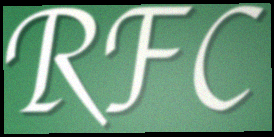
RFC